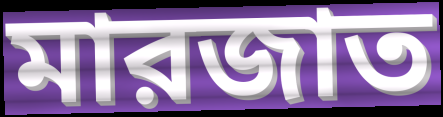
মারজাত